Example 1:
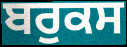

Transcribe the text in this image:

ਬਰੁਕਸ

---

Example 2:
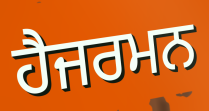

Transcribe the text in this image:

ਹੈਜਰਮਨ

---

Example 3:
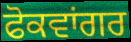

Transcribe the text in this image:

ਫੋਕਵਾਂਗਰ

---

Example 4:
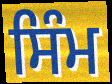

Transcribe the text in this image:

ਸਿੰਮ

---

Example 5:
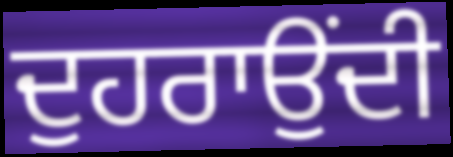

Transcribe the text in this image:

ਦੁਹਰਾਉਂਦੀ